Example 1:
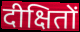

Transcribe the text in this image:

दीक्षितों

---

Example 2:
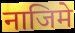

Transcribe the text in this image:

नाजिमे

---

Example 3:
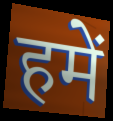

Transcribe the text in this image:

हमें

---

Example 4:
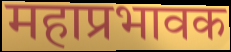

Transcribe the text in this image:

महाप्रभावक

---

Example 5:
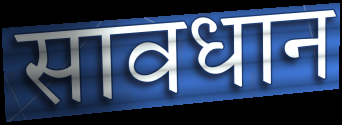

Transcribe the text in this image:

सावधान